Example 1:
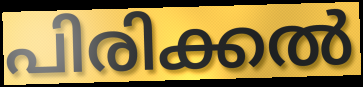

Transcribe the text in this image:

പിരിക്കൽ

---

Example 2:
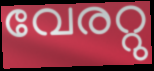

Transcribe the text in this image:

വേരറ്റു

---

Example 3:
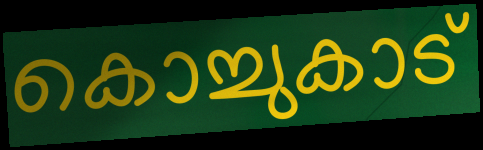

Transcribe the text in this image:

കൊച്ചുകാട്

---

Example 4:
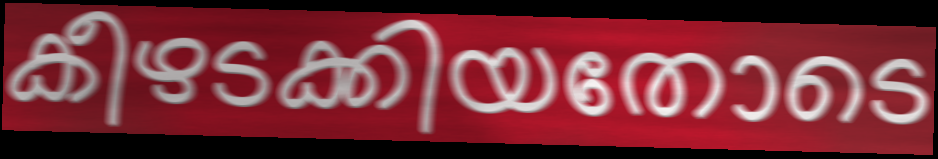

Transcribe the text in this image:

കീഴടക്കിയതോടെ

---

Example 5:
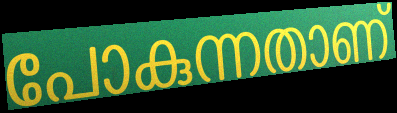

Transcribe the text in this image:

പോകുന്നതാണ്